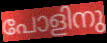
പോളിനു